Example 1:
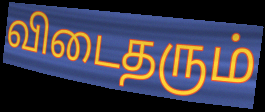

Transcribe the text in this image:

விடைதரும்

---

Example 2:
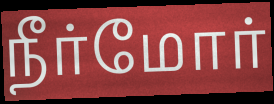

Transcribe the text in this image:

நீர்மோர்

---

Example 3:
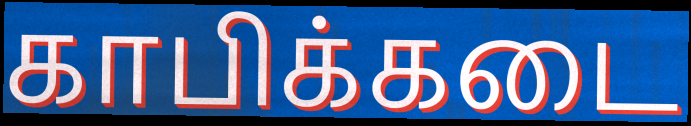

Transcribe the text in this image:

காபிக்கடை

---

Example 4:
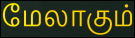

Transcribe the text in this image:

மேலாகும்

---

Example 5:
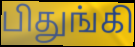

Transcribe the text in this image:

பிதுங்கி